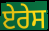
ਏਰੇਸ